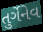
તુર્ગેનેવ